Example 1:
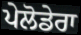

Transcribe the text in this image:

ਪੇਲੋਡੇਰਾ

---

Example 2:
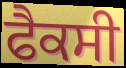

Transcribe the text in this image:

ਫੈਕਸੀ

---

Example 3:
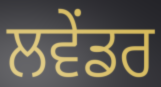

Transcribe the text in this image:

ਲਵੇਂਡਰ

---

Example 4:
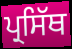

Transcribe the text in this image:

ਪ੍ਰਸਿੱਥ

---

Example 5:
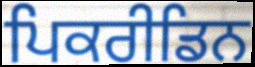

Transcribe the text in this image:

ਪਿਕਰੀਡਿਨ